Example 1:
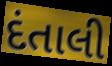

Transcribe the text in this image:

દંતાલી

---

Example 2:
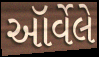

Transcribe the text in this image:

ઑર્વેલે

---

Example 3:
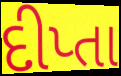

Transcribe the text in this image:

દીપ્તા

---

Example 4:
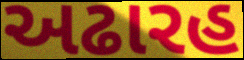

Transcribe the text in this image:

અઢારહ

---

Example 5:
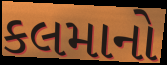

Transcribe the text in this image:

કલમાનો